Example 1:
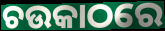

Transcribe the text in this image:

ଚଉକାଠରେ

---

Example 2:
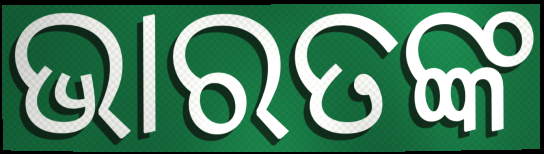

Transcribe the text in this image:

ଭାରତଙ୍କ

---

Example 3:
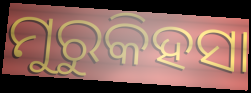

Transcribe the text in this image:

ମୁରୁକିହସା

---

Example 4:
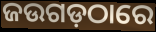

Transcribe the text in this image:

ଜଉଗଡ଼ଠାରେ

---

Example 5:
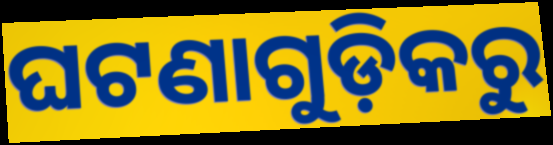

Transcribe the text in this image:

ଘଟଣାଗୁଡ଼ିକରୁ